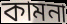
কামনা